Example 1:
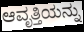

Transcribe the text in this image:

ಆವೃತ್ತಿಯನ್ನು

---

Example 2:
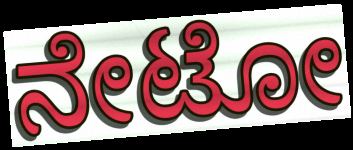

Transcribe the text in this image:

ನೇಟೋ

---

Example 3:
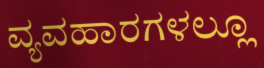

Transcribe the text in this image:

ವ್ಯವಹಾರಗಳಲ್ಲೂ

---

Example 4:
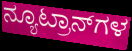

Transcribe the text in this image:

ನ್ಯೂಟ್ರಾನ್‌ಗಳ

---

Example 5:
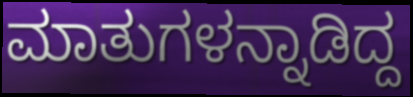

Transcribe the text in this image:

ಮಾತುಗಳನ್ನಾಡಿದ್ದ